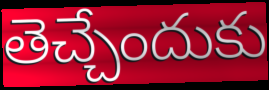
తెచ్చేందుకు